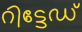
റിട്ടേഡ്